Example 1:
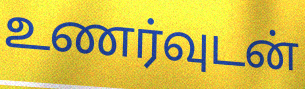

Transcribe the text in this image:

உணர்வுடன்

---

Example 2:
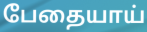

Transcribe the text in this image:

பேதையாய்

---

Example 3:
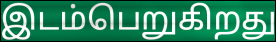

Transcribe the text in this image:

இடம்பெறுகிறது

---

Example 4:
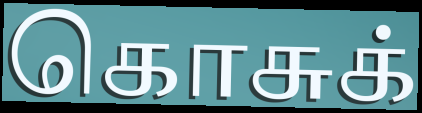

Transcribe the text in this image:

கொசுக்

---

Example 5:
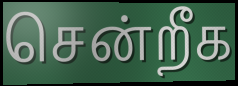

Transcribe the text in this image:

சென்றீக